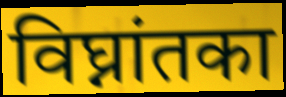
विघ्नांतका